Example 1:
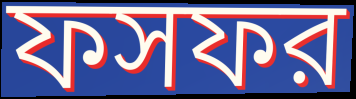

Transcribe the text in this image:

ফসফর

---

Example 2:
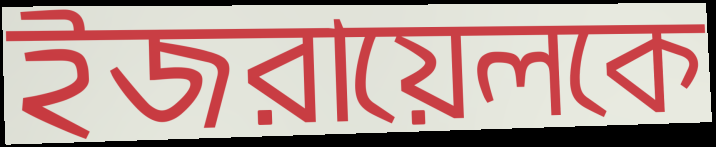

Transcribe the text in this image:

ইজরায়েলকে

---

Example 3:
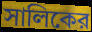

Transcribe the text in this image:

সালিকের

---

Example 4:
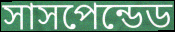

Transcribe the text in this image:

সাসপেন্ডেড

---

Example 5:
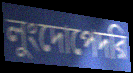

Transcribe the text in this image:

লুংদোপেদরি